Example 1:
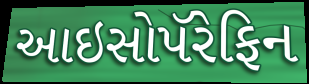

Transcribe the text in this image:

આઇસોપૅરેફિન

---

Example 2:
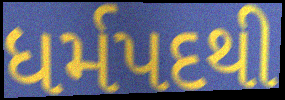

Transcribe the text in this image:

ધર્મપદથી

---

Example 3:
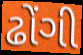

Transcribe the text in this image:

ઢોંગી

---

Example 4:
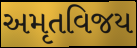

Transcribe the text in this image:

અમૃતવિજય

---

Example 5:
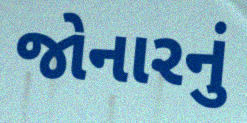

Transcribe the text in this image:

જોનારનું